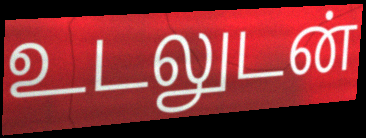
உடலுடன்